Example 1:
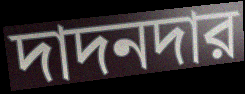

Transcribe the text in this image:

দাদনদার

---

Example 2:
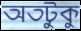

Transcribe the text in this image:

অতটুকু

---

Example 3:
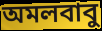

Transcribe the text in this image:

অমলবাবু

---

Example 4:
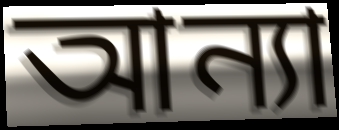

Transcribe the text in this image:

আন্যা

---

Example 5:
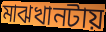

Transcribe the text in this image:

মাঝখানটায়